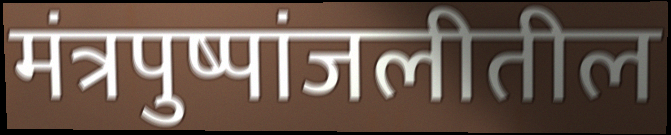
मंत्रपुष्पांजलीतील